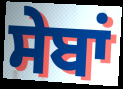
ਸੇਬਾਂ